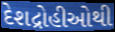
દેશદ્રોહીઓથી